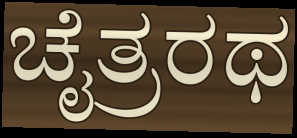
ಚೈತ್ರರಥ